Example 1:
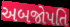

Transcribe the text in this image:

અબજોપતિ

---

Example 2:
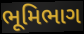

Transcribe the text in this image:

ભૂમિભાગ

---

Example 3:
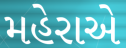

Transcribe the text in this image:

મહેરાએ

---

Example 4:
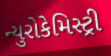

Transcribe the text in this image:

ન્યુરોકેમિસ્ટ્રી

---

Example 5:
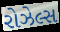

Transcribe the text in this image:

રોઝેલ્સ